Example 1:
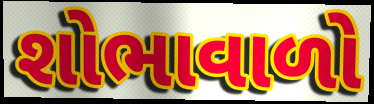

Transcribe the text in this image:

શોભાવાળો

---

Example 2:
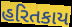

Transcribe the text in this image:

હરિતકાય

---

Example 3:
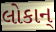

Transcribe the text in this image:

લોકાન્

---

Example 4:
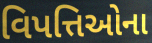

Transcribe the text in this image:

વિપત્તિઓના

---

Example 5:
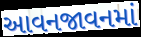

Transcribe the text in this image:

આવનજાવનમાં